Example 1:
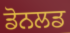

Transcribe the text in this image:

ਡੋਨਲਡ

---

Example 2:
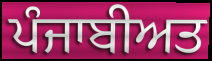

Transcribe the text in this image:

ਪੰਜਾਬੀਅਤ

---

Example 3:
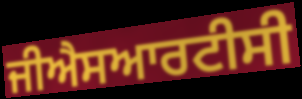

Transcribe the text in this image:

ਜੀਐਸਆਰਟੀਸੀ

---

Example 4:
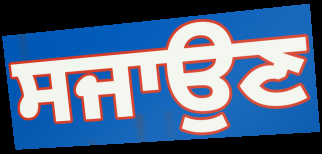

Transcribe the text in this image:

ਸਜਾਉਣ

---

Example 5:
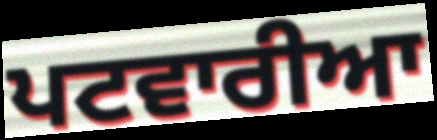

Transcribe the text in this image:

ਪਟਵਾਰੀਆ